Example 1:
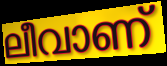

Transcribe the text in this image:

ലീവാണ്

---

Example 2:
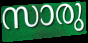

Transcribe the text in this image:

സാരു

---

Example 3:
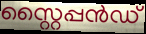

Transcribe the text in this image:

സ്റ്റൈപ്പൻഡ്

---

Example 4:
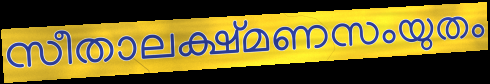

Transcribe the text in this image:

സീതാലക്ഷ്മണസംയുതം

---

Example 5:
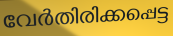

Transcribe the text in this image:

വേർതിരിക്കപ്പെട്ട